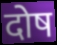
दोष